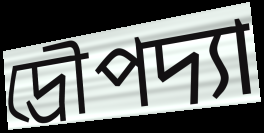
দ্রৌপদ্যা